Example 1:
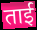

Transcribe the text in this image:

ताई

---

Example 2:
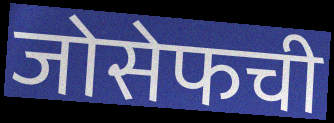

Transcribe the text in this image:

जोसेफची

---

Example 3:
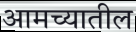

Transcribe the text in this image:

आमच्यातील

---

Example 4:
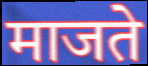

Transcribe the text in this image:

माजते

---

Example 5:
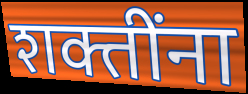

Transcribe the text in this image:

शक्तींना